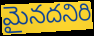
మైనదనిరి